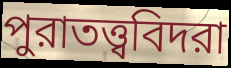
পুরাতত্ত্ববিদরা